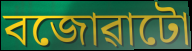
বজোৱাটো